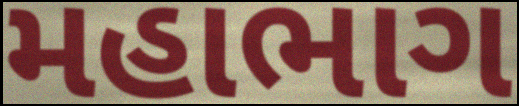
મહાભાગ